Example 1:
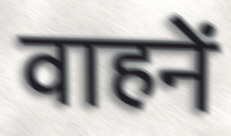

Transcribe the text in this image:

वाहनें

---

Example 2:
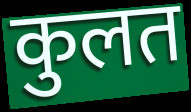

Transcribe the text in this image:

कुलत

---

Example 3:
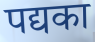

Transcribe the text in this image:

पद्यका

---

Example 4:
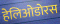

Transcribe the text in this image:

हेलिओडोरस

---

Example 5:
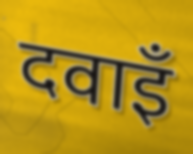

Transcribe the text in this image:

दवाइँ